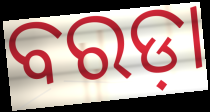
ବରଡ଼ା